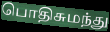
பொதிசுமந்து